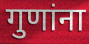
गुणांना